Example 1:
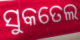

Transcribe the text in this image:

ସୁକତେଲ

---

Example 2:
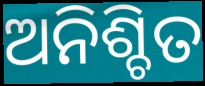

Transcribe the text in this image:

ଅନିଶ୍ଚିତ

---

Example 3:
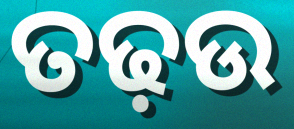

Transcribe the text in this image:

ତଢ଼ଉ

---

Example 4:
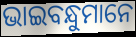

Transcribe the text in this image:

ଭାଇବନ୍ଧୁମାନେ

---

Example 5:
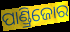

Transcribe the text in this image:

ପାଣ୍ଡ୍ରିଜୋର